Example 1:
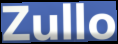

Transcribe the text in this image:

Zullo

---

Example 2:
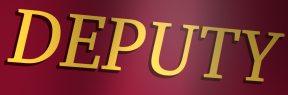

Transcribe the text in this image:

DEPUTY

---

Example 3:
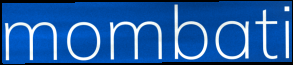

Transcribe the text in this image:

mombati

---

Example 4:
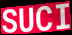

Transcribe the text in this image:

SUCI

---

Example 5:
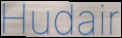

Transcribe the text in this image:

Hudair